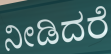
ನೀಡಿದರೆ